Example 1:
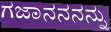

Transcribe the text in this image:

ಗಜಾನನನನ್ನು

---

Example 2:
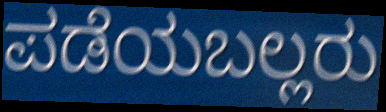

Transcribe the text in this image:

ಪಡೆಯಬಲ್ಲರು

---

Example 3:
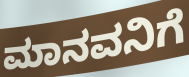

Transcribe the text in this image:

ಮಾನವನಿಗೆ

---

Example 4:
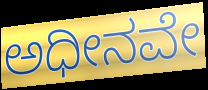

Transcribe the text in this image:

ಅಧೀನವೇ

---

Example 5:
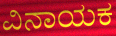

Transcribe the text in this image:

ವಿನಾಯಕ